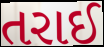
તરાઈ